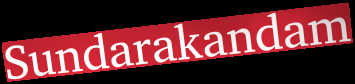
Sundarakandam